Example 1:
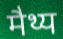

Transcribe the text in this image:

मैथ्य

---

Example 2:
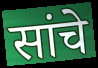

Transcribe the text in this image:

सांचे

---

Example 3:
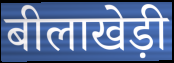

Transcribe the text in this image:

बीलाखेड़ी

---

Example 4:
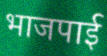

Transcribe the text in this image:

भाजपाई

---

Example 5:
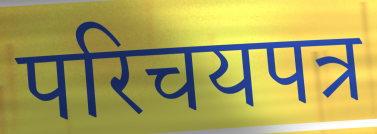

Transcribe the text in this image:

परिचयपत्र